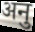
अनु